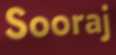
Sooraj